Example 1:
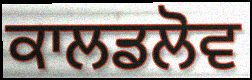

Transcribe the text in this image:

ਕਾਲਡਲੋਵ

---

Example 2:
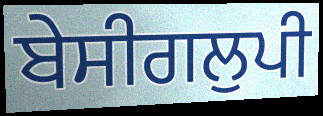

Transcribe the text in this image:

ਬੇਸੀਗਲੁਪੀ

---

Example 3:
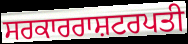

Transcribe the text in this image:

ਸਰਕਾਰਰਾਸ਼ਟਰਪਤੀ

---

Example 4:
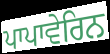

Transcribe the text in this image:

ਪਾਪਾਵੇਰਿਨ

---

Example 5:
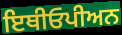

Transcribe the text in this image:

ਇਥੀਓਪੀਅਨ